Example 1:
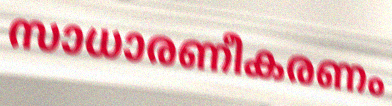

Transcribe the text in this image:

സാധാരണീകരണം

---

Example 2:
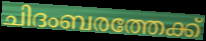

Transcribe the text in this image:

ചിദംബരത്തേക്ക്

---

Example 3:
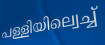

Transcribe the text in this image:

പള്ളിയില്വെച്ച്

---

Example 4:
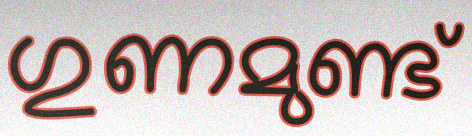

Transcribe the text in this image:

ഗുണമുണ്ട്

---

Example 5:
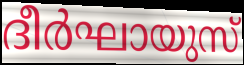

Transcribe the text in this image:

ദീർഘായുസ്